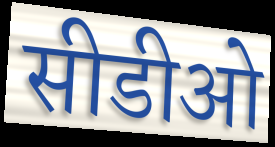
सीडीओ